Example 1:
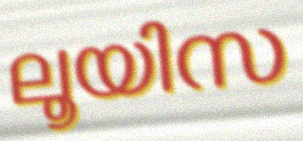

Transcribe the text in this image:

ലൂയിസ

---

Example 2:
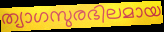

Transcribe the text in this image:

ത്യാഗസുരഭിലമായ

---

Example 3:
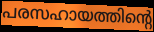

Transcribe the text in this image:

പരസഹായത്തിന്റെ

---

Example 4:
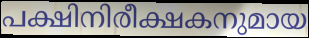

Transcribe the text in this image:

പക്ഷിനിരീക്ഷകനുമായ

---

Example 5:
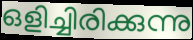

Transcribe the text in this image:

ഒളിച്ചിരിക്കുന്നു